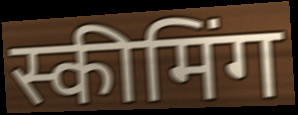
स्कीमिंग